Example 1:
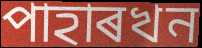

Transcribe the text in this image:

পাহাৰখন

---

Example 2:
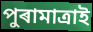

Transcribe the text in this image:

পুৰামাত্ৰাই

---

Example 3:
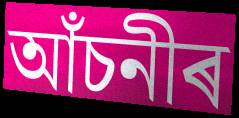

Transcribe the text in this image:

আঁচনীৰ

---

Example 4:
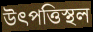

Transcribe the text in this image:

উৎপত্তিস্থল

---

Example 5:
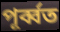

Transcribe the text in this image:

পূৰ্ব্বত